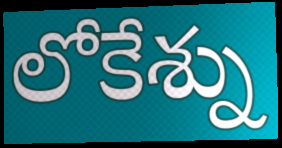
లోకేశ్ను